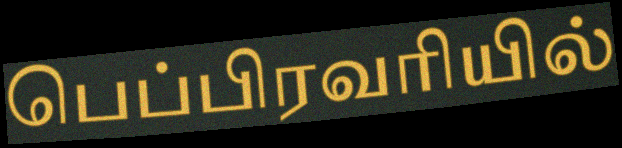
பெப்பிரவரியில்